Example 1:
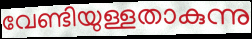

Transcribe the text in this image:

വേണ്ടിയുള്ളതാകുന്നു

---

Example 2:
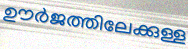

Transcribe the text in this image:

ഊർജത്തിലേക്കുള്ള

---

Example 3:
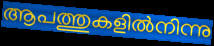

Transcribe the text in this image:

ആപത്തുകളിൽനിന്നു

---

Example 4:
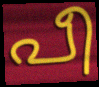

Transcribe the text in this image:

പീ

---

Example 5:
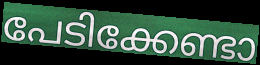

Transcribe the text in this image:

പേടിക്കേണ്ടാ